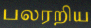
பலரறிய